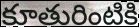
కూతురింటికి